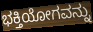
ಭಕ್ತಿಯೋಗವನ್ನು